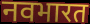
नवभारत